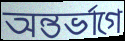
অন্তর্ভাগে